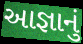
આજ્ઞાનું